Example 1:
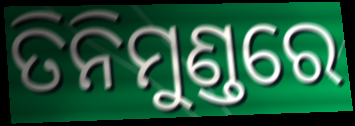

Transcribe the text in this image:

ତିନିମୁଣ୍ଡରେ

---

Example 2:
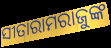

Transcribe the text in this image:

ସୀତାରାମରାଜୁଙ୍କ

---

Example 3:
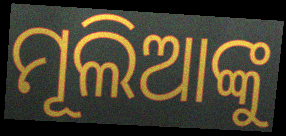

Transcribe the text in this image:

ମୂଲିଆଙ୍କୁ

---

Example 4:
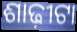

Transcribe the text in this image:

ଶାଢ଼ୀଟା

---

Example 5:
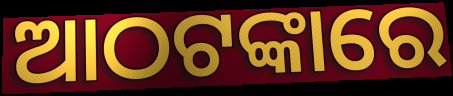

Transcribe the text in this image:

ଆଠଟଙ୍କାରେ